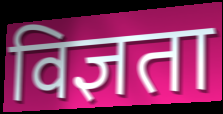
विज्ञता